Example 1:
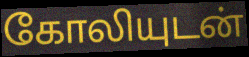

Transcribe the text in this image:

கோலியுடன்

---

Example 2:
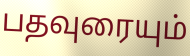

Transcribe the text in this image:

பதவுரையும்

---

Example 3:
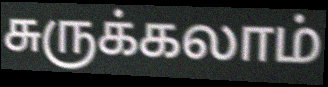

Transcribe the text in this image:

சுருக்கலாம்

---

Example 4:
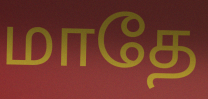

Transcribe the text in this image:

மாதே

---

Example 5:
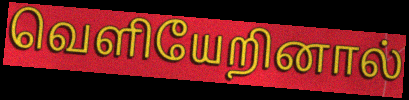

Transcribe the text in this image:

வெளியேறினால்